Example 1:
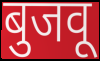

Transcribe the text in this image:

बुजवू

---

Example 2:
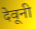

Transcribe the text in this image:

देवूनी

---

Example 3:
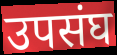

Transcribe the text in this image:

उपसंघ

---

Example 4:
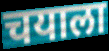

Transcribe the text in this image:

चयाला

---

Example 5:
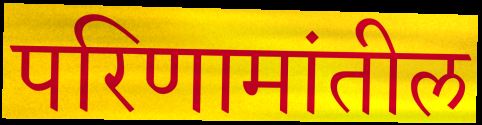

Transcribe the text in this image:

परिणामांतील